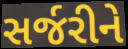
સર્જરીને